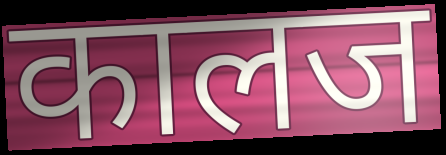
कालज